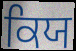
ਕਿਯ